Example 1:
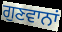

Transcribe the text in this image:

ਗੁਣਵਾਨਾਂ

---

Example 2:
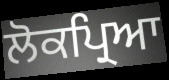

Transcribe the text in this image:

ਲੋਕਪ੍ਰਿਆ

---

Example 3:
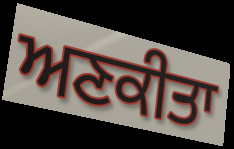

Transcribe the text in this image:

ਅਣਕੀਤਾ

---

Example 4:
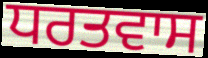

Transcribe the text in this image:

ਧਰਤਵਾਸ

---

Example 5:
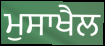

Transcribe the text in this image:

ਮੁਸਾਖੈਲ